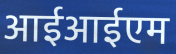
आईआईएम